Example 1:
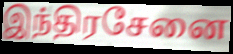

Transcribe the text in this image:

இந்திரசேனை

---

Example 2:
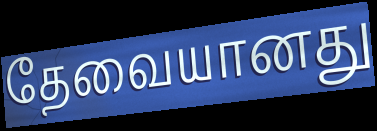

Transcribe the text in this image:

தேவையானது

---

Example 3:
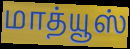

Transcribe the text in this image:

மாத்யூஸ்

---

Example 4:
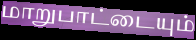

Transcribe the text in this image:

மாறுபாட்டையும்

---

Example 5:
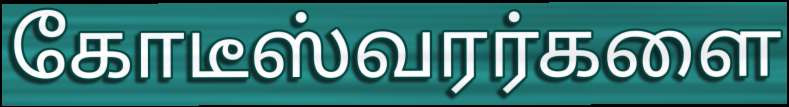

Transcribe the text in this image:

கோடீஸ்வரர்களை